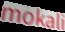
mokali